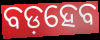
ବଡ଼ହେବ